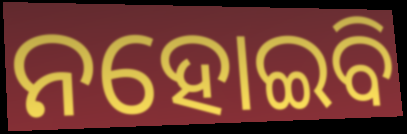
ନହୋଇବି